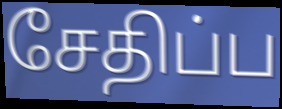
சேதிப்ப